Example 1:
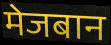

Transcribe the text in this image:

मेजबान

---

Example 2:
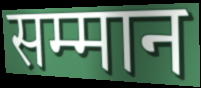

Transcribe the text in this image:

सम्मान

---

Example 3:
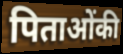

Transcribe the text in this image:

पिताओंकी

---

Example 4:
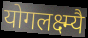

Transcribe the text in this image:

योगलक्ष्म्यै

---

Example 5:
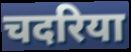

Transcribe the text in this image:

चदरिया